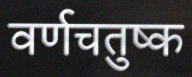
वर्णचतुष्क